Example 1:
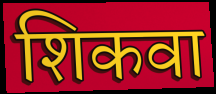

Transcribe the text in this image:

शिकवा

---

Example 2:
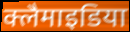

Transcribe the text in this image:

क्लैमाइडिया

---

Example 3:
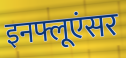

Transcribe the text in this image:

इनफ्लूएंसर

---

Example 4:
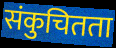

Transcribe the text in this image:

संकुचितता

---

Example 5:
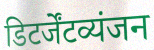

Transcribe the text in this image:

डिटर्जेंटव्यंजन